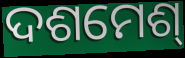
ଦଶମେଶ୍